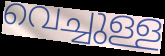
വെച്ചുള്ള